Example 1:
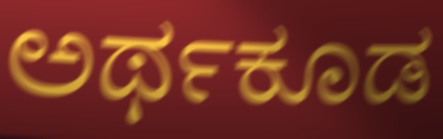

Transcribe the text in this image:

ಅರ್ಥಕೂಡ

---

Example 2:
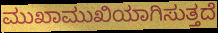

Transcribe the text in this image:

ಮುಖಾಮುಖಿಯಾಗಿಸುತ್ತದೆ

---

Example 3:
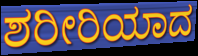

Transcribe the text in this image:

ಶರೀರಿಯಾದ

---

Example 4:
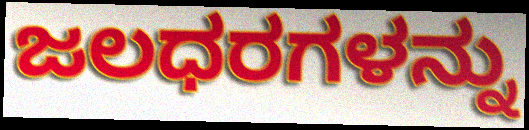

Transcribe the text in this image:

ಜಲಧರಗಳನ್ನು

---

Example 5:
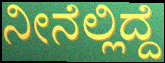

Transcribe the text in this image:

ನೀನೆಲ್ಲಿದ್ದೆ